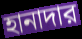
হানাদার